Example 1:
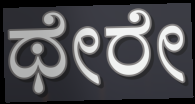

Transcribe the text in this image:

ಥೇರೇ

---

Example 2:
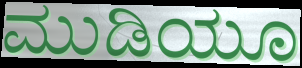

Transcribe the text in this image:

ಮುಡಿಯೂ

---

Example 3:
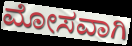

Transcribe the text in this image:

ಮೋಸವಾಗಿ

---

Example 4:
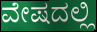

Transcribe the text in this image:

ವೇಷದಲ್ಲಿ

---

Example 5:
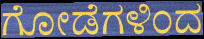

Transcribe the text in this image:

ಗೋಡೆಗಳಿಂದ